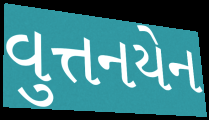
વુત્તનયેન